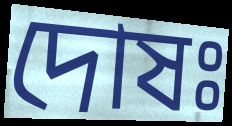
দোষঃ